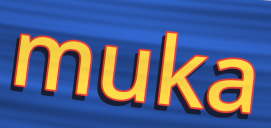
muka